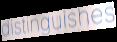
distinguishes